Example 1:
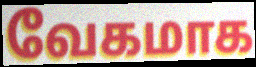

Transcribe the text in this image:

வேகமாக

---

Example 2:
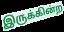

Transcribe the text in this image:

இருக்கின்ற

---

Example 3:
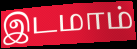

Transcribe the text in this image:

இடமாம்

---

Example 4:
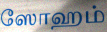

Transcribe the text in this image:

ஸோஹம்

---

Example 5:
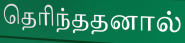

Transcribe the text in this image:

தெரிந்ததனால்